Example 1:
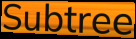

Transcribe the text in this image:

Subtree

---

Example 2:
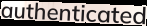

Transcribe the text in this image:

authenticated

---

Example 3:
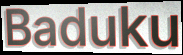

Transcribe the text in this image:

Baduku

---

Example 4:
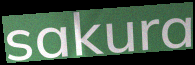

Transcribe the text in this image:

sakura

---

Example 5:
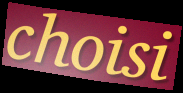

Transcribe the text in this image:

choisi